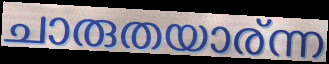
ചാരുതയാര്ന്ന